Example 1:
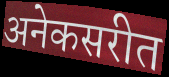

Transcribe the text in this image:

अनेकसरीत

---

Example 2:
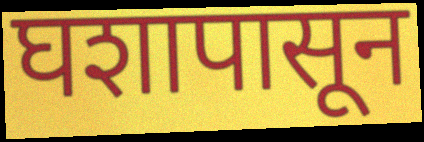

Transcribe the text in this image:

घशापासून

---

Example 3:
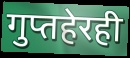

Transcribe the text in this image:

गुप्तहेरही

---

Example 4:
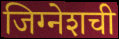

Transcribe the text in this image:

जिग्नेशची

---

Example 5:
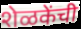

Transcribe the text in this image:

शेळकेंची